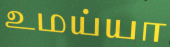
உமய்யா